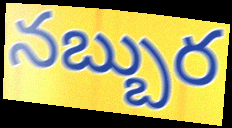
నబ్బుర